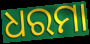
ଧରମା